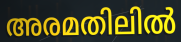
അരമതിലിൽ